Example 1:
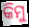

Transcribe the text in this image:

କିମୁ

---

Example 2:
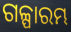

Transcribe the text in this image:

ଗଳ୍ପାରମ୍ଭ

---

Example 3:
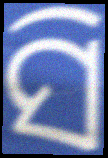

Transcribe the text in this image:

ସି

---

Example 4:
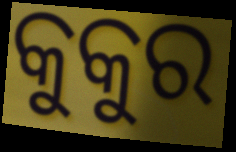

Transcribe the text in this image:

କୁକୁର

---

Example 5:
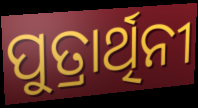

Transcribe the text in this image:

ପୁତ୍ରାର୍ଥିନୀ